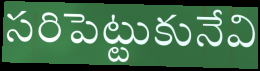
సరిపెట్టుకునేవి